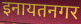
इनायतनगर